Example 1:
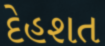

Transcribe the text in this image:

દેહશત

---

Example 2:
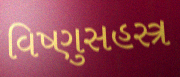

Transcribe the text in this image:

વિષ્ણુસહસ્ત્ર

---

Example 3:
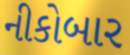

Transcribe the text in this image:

નીકોબાર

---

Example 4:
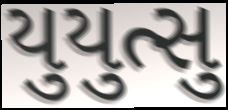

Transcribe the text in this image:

યુયુત્સુ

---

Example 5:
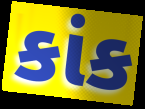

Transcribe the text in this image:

કાંક